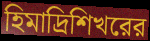
হিমাদ্রিশিখরের